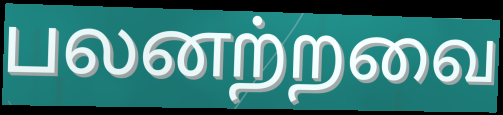
பலனற்றவை